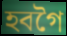
হবগৈ